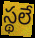
స్థలే